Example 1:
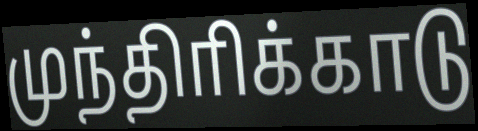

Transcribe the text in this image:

முந்திரிக்காடு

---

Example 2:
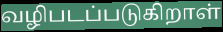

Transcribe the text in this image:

வழிபடப்படுகிறாள்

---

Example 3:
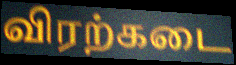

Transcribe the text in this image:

விரற்கடை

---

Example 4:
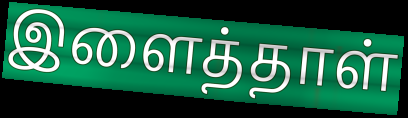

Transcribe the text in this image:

இளைத்தாள்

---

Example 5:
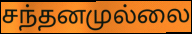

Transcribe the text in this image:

சந்தனமுல்லை